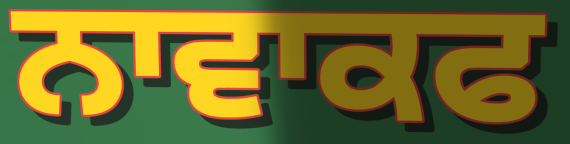
ਨਾਵਾਕਫ